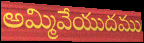
అమ్మివేయుదము